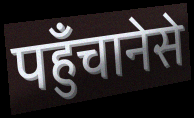
पहुँचानेसे